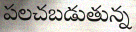
పలచబడుతున్న